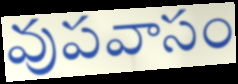
వుపవాసం